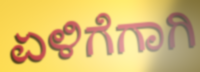
ಏಳಿಗೆಗಾಗಿ